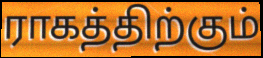
ராகத்திற்கும்